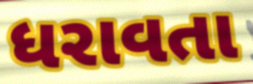
ધરાવતા